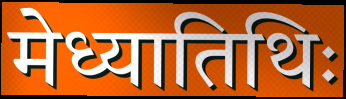
मेध्यातिथिः